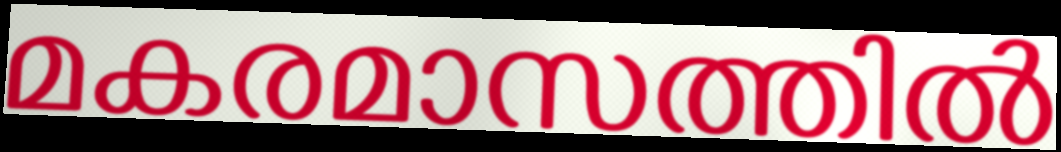
മകരമാസത്തിൽ